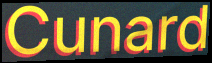
Cunard